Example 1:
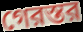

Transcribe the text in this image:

গেরস্তর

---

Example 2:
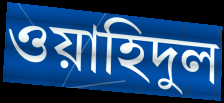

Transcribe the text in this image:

ওয়াহিদুল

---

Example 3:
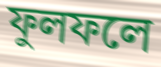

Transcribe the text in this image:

ফুলফলে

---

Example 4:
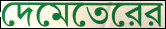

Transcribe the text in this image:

দেমেতেরের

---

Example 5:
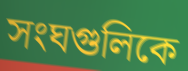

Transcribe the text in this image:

সংঘগুলিকে